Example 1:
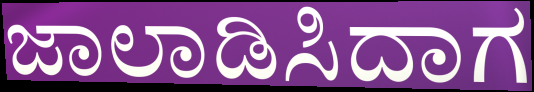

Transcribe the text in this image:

ಜಾಲಾಡಿಸಿದಾಗ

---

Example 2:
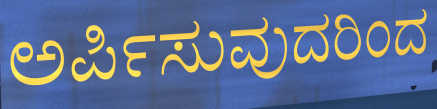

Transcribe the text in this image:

ಅರ್ಪಿಸುವುದರಿಂದ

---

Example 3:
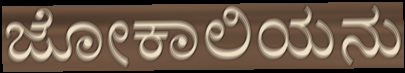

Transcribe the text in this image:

ಜೋಕಾಲಿಯನು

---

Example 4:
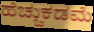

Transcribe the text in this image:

ಹೆಚ್ಚುಕಡಮೆ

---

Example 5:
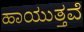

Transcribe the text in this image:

ಹಾಯುತ್ತವೆ